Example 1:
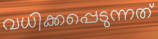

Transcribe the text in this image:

വധിക്കപ്പെടുന്നത്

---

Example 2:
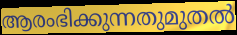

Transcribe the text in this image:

ആരംഭിക്കുന്നതുമുതൽ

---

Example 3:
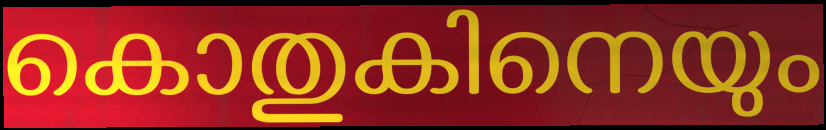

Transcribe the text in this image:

കൊതുകിനെയും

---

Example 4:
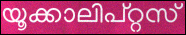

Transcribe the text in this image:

യൂക്കാലിപ്റ്റസ്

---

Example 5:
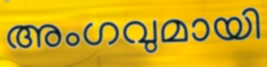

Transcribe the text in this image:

അംഗവുമായി